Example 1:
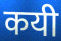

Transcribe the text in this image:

कयी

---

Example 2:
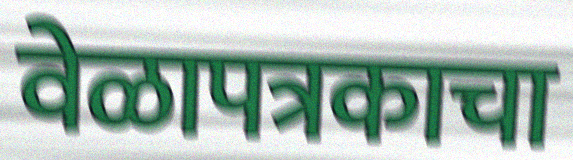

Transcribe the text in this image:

वेळापत्रकाचा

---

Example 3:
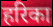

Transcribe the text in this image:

हरिका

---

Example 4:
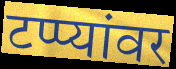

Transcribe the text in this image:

टप्प्यांवर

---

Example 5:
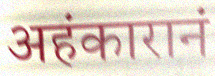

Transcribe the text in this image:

अहंकारानं